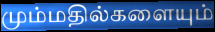
மும்மதில்களையும்